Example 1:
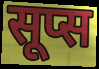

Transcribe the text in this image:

सूप्स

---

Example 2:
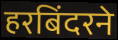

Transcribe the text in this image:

हरबिंदरने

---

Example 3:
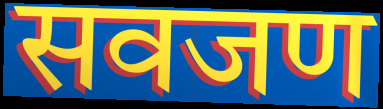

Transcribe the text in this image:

सवजण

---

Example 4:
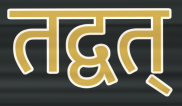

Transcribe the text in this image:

तद्वत्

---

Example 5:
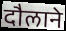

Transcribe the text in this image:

दौलाने